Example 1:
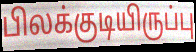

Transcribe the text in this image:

பிலக்குடியிருப்பு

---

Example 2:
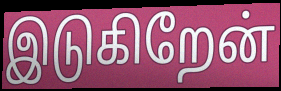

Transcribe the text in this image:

இடுகிறேன்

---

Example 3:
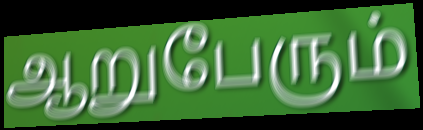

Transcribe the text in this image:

ஆறுபேரும்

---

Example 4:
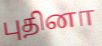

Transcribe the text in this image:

புதினா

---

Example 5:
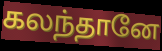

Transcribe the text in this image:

கலந்தானே